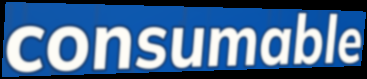
consumable